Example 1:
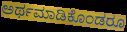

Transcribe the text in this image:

ಅರ್ಥಮಾಡಿಕೊಂಡರೂ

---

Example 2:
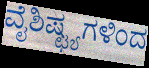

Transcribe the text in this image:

ವೈಶಿಷ್ಟ್ಯಗಳಿಂದ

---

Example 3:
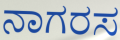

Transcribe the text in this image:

ನಾಗರಸ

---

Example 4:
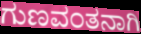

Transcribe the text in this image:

ಗುಣವಂತನಾಗಿ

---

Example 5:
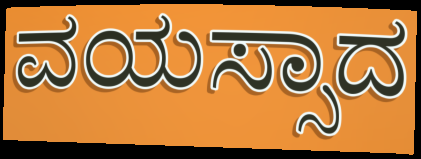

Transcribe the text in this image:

ವಯಸ್ಸಾದ